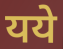
यये